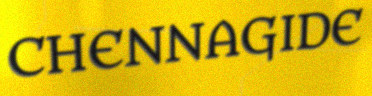
CHENNAGIDE